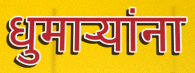
धुमाऱ्यांना